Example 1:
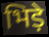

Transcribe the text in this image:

भिड़े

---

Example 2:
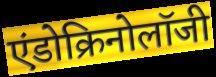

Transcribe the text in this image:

एंडोक्रिनोलॉजी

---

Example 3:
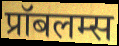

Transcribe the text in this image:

प्रॉबलम्स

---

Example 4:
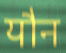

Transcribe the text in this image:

यौन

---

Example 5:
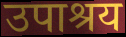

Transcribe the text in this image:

उपाश्रय